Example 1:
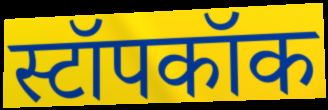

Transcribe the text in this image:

स्टॉपकॉक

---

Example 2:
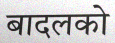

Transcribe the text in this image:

बादलको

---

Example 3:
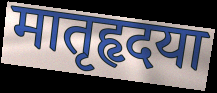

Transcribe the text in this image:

मातृहृदया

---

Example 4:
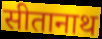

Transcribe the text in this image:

सीतानाथ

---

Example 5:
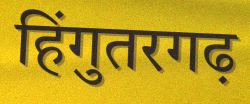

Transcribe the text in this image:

हिंगुतरगढ़